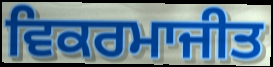
ਵਿਕਰਮਾਜੀਤ